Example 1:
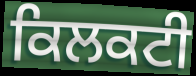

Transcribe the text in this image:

ਕਿਲਕਟੀ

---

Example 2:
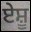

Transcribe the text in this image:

ਏਸ਼ੂ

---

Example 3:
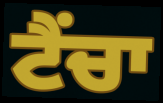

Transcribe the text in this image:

ਟੈਂਚਾ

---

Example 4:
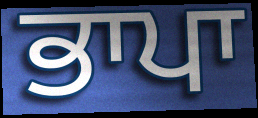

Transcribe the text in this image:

ਭਾਪਾ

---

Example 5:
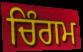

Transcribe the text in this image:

ਚਿੰਗਮ